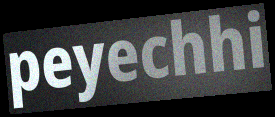
peyechhi